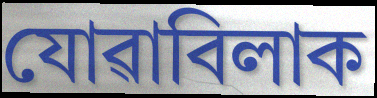
যোৱাবিলাক